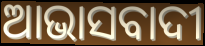
ଆଭାସବାଦୀ